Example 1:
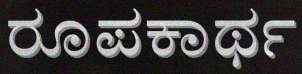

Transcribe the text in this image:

ರೂಪಕಾರ್ಥ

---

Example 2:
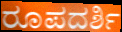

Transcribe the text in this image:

ರೂಪದರ್ಶಿ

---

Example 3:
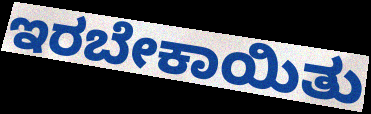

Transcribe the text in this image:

ಇರಬೇಕಾಯಿತು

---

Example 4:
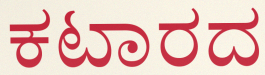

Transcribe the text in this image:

ಕಟಾರದ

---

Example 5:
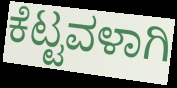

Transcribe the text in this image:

ಕೆಟ್ಟವಳಾಗಿ